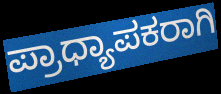
ಪ್ರಾಧ್ಯಾಪಕರಾಗಿ